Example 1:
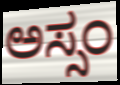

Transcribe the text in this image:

ಅಸ್ಸಂ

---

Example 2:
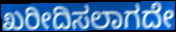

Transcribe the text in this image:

ಖರೀದಿಸಲಾಗದೇ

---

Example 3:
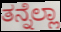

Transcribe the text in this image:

ತನ್ನೆಲ್ಲಾ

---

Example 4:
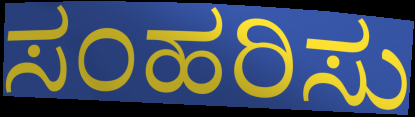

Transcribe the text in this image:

ಸಂಹರಿಸು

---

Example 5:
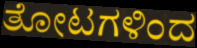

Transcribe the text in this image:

ತೋಟಗಳಿಂದ